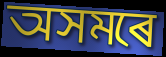
অসমৰে